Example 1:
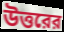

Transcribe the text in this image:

উত্তরের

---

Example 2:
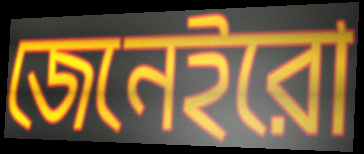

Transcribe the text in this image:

জেনেইরো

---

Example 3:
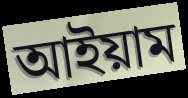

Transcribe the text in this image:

আইয়াম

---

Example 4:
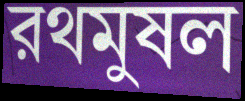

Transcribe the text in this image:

রথমুষল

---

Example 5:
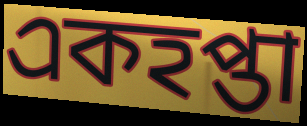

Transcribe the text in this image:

একহপ্তা